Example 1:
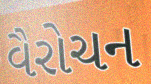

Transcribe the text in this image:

વૈરોચન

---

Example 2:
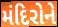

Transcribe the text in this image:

મંદિરોને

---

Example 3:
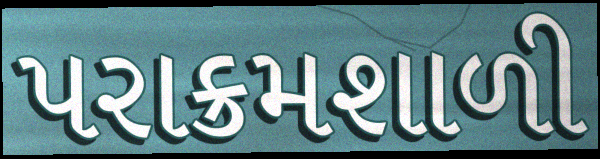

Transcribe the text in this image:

પરાક્રમશાળી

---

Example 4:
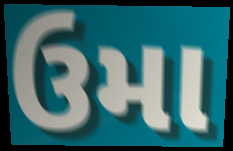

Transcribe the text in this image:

ઉમા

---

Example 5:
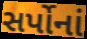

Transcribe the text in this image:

સર્પોનાં